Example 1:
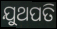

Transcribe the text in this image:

ଯୁଥପତି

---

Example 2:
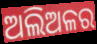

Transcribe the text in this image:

ଅଲିଅଳର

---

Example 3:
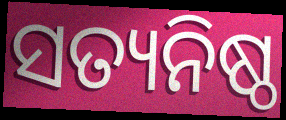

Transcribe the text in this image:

ସତ୍ୟନିଷ୍ଠ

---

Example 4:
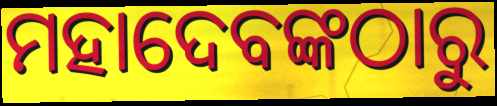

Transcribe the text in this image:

ମହାଦେବଙ୍କଠାରୁ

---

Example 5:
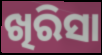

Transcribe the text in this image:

ଖିରିସା